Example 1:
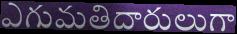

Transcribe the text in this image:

ఎగుమతిదారులుగా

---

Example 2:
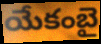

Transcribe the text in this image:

యేకంబై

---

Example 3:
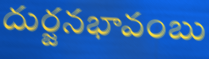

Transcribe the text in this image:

దుర్జనభావంబు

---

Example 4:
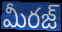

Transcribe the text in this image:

మీరజ్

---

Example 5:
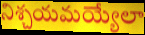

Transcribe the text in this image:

నిశ్చయమయ్యేలా